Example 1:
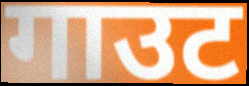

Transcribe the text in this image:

गाउट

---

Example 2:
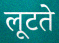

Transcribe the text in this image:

लूटते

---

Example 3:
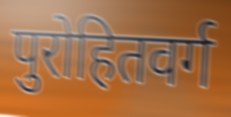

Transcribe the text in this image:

पुरोहितवर्ग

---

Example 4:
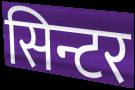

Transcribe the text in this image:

सिन्टर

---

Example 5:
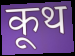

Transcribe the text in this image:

कूथ